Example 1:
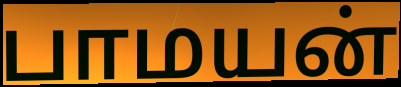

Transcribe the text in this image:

பாமயன்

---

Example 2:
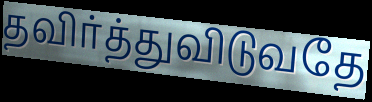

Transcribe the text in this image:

தவிர்த்துவிடுவதே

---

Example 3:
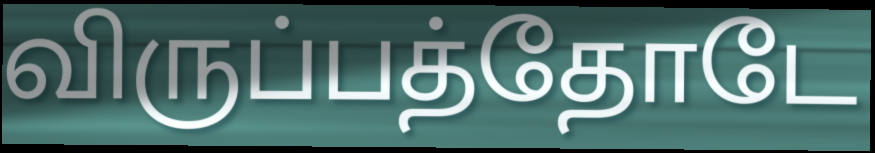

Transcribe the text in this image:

விருப்பத்தோடே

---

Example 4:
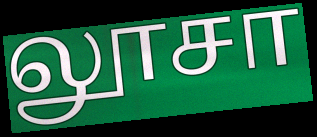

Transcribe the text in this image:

லூசா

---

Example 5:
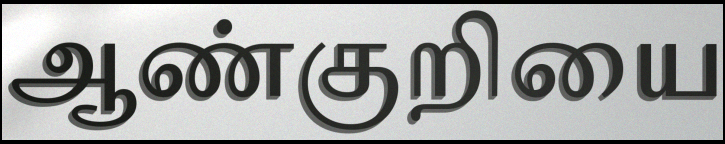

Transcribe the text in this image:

ஆண்குறியை